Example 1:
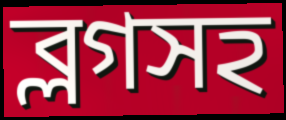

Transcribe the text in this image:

ব্লগসহ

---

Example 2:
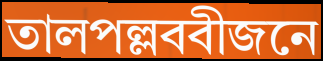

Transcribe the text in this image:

তালপল্লববীজনে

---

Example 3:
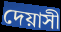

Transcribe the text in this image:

দেয়াসী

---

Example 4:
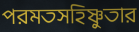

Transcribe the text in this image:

পরমতসহিষ্ণুতার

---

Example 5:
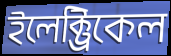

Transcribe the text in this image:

ইলেক্ট্রিকেল